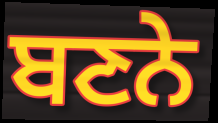
ਬਣਨੇ